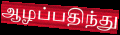
ஆழப்பதிந்து